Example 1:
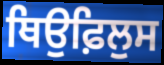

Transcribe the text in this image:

ਥਿਉਫ਼ਿਲੁਸ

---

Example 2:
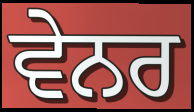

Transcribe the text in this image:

ਵੇਨਰ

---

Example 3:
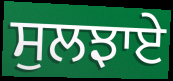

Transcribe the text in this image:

ਸੁਲਝਾਏ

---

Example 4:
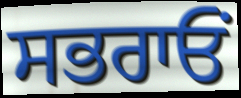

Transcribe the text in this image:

ਸਭਰਾਓਂ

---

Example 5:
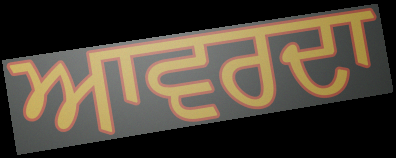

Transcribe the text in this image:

ਆਵਰਦਾ